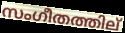
സംഗീതത്തില്